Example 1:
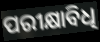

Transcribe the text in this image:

ପରୀକ୍ଷାବିଧି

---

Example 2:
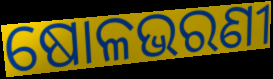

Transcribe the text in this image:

ଷୋଳଭରଣୀ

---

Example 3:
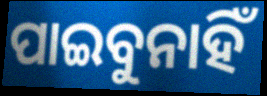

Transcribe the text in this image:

ପାଇବୁନାହିଁ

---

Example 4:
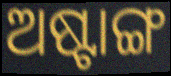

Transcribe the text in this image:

ଅଷ୍ଟାଙ୍ଗ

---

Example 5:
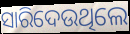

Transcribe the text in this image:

ସାରିଦେଉଥିଲେ